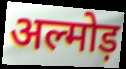
अल्मोड़